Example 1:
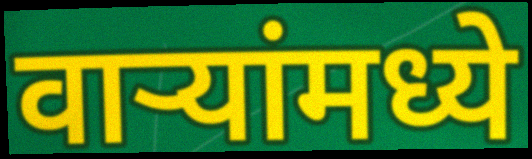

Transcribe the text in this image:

वाऱ्यांमध्ये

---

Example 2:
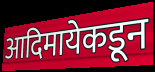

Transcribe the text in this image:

आदिमायेकडून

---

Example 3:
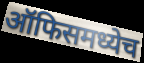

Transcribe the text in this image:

ऑफिसमध्येच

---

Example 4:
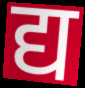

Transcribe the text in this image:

द्य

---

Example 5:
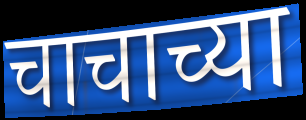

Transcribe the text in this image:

चाचाच्या